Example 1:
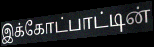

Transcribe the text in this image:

இக்கோட்பாட்டின்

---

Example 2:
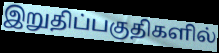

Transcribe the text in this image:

இறுதிப்பகுதிகளில்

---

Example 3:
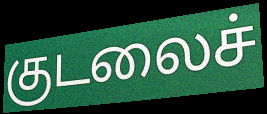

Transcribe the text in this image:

குடலைச்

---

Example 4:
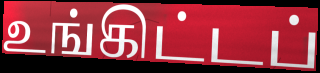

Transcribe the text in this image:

உங்கிட்டப்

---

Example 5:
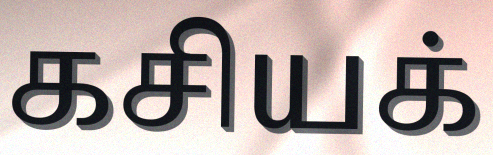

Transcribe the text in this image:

கசியக்